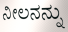
ನೀಲನನ್ನು